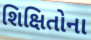
શિક્ષિતોના